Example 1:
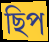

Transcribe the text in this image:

ছিপ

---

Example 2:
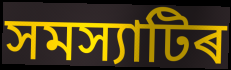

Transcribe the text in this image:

সমস্যাটিৰ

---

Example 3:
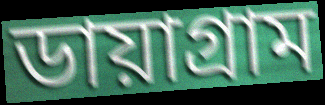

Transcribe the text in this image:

ডায়াগ্ৰাম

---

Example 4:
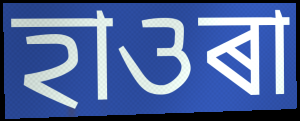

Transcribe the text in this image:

হাওৰা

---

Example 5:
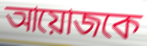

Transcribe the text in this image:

আয়োজকে